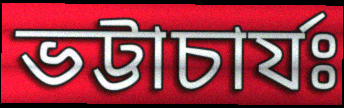
ভট্টাচাৰ্যঃ